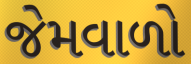
જેમવાળો